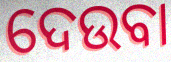
ଦେଉବା